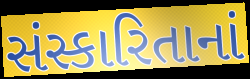
સંસ્કારિતાનાં